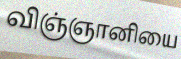
விஞ்ஞானியை